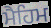
ਮੈਹਿਮ